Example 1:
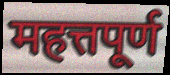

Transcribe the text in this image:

महत्तपूर्ण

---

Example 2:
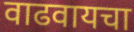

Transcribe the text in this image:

वाढवायचा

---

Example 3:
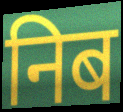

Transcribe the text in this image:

निब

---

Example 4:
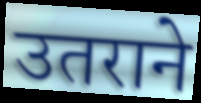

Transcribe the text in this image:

उतराने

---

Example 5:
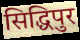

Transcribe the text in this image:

सिद्धिपुर